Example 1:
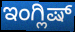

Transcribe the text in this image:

ಇಂಗ್ಲಿಷ್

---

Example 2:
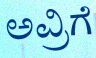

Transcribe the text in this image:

ಅವ್ರಿಗೆ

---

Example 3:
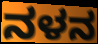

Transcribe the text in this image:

ನಳನ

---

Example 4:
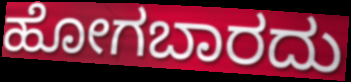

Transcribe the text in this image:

ಹೋಗಬಾರದು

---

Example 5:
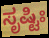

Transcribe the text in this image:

ಸೃಷ್ಟಿಃ